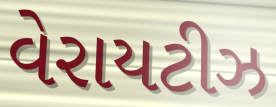
વેરાયટીઝ